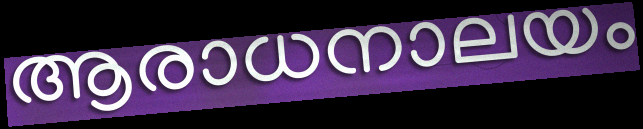
ആരാധനാലയം